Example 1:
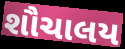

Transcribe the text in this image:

શૌચાલય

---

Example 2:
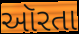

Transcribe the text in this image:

ઑરતા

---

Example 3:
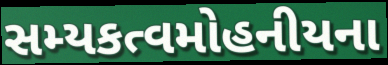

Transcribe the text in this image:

સમ્યકત્વમોહનીયના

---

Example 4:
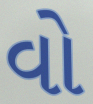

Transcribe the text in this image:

વો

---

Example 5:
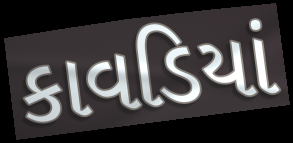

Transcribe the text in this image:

કાવડિયાં